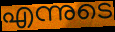
എന്നുടെ